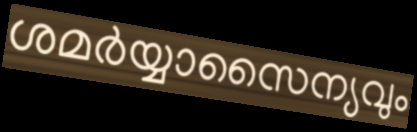
ശമർയ്യാസൈന്യവും